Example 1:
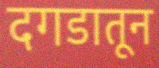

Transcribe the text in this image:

दगडातून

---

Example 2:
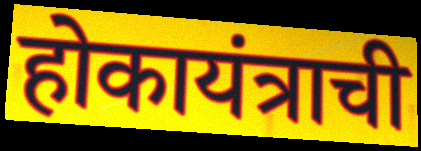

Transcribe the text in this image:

होकायंत्राची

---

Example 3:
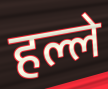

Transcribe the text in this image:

हल्ले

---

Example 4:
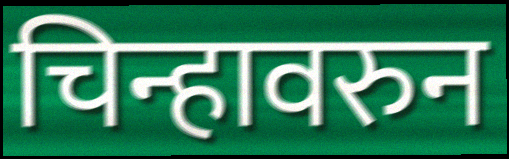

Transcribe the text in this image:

चिन्हावरुन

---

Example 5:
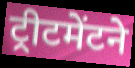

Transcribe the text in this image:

ट्रीटमेंटने